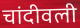
चांदीवली